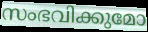
സംഭവിക്കുമോ